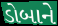
ડોબાને